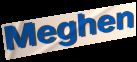
Meghen